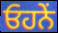
ਓਹਨੇੰ